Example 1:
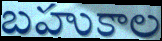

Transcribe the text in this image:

బహుకాల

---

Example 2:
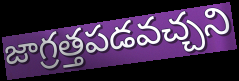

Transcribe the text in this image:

జాగ్రత్తపడవచ్చని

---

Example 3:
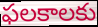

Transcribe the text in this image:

ఫలకాలకు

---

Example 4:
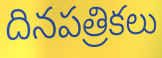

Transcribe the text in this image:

దినపత్రికలు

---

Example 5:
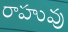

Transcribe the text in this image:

రాహువు